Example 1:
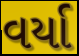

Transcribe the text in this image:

વર્યા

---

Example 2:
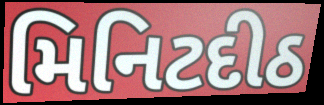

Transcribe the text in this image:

મિનિટદીઠ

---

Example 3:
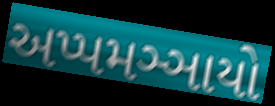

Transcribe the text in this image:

અપ્પમઞ્ઞાયો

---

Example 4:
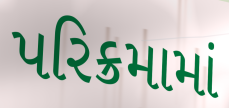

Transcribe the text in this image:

પરિક્રમામાં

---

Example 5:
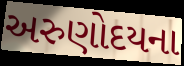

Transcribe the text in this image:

અરુણોદયના